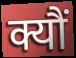
क्यौं